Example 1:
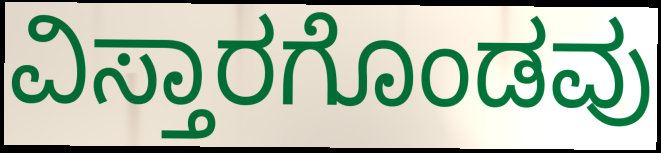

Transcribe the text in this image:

ವಿಸ್ತಾರಗೊಂಡವು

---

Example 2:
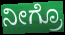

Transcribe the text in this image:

ನೀಗ್ರೊ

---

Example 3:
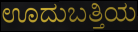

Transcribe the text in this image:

ಊದುಬತ್ತಿಯ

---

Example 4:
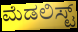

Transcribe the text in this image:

ಮೆಡಲಿಸ್ಟ್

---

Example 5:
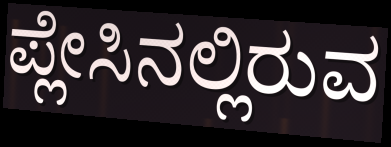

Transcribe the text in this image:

ಪ್ಲೇಸಿನಲ್ಲಿರುವ